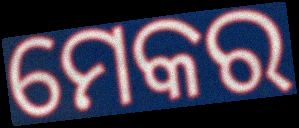
ମେକର